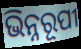
ଭିନ୍ନରୂପୀ